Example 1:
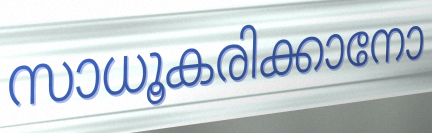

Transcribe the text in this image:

സാധൂകരിക്കാനോ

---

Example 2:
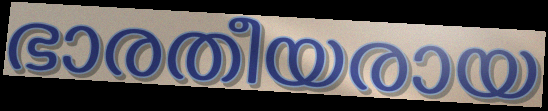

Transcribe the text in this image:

ഭാരതീയരായ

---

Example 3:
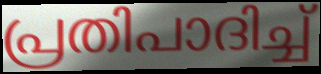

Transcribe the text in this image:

പ്രതിപാദിച്ച്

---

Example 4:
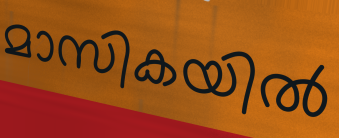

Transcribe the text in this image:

മാസികയിൽ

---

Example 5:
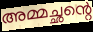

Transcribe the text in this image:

അമ്മച്ഛന്റെ